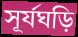
সূর্যঘড়ি